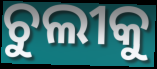
ଚୁଲୀକୁ